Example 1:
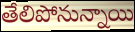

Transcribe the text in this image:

తేలిపోనున్నాయి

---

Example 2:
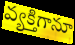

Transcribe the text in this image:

వ్యక్తిగానూ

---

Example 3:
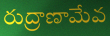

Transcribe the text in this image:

రుద్రాణామేవ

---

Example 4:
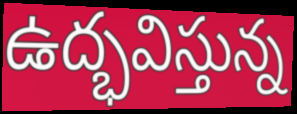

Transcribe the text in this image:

ఉద్భవిస్తున్న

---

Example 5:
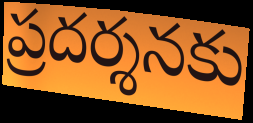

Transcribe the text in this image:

ప్రదర్శనకు